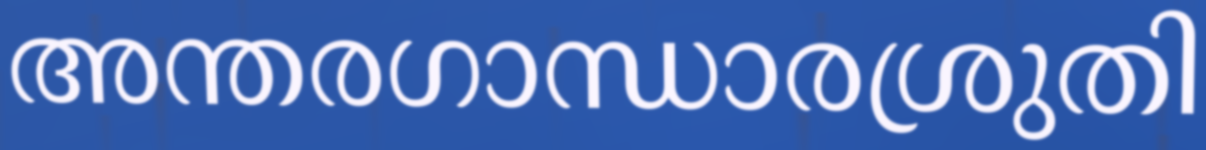
അന്തരഗാന്ധാരശ്രുതി